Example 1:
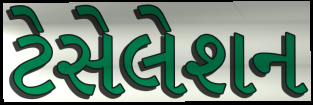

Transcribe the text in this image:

ટેસેલેશન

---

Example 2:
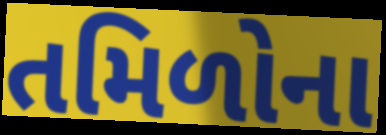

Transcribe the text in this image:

તમિળોના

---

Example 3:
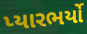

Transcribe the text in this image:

પ્યારભર્યો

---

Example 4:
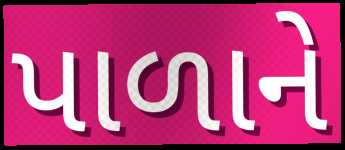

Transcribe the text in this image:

પાળાને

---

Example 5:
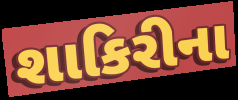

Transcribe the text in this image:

શાકિરીના